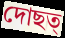
দোছত্